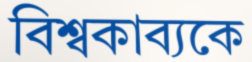
বিশ্বকাব্যকে